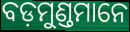
ବଡ଼ମୁଣ୍ଡମାନେ